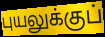
புயலுக்குப்